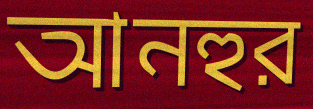
আনহুর